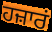
ਹਜ਼ਾਰਂ